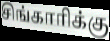
சிங்காரிக்கு